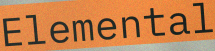
Elemental